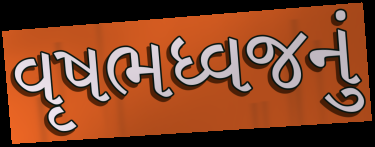
વૃષભધ્વજનું